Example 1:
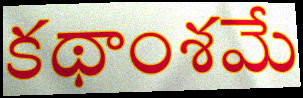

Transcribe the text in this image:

కథాంశమే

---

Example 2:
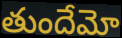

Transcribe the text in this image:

తుందేమో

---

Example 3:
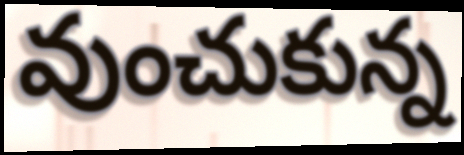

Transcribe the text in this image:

వుంచుకున్న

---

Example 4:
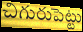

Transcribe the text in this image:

చిగురుపెట్టు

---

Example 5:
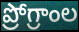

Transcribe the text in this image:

ప్రోగ్రాంల